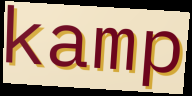
kamp